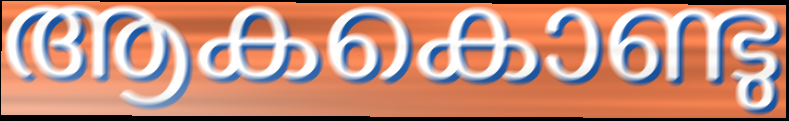
ആകകൊണ്ടു